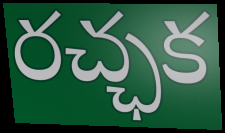
రచ్ఛక